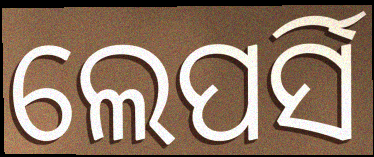
ଲେପର୍ସି